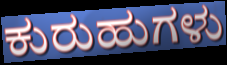
ಕುರುಹುಗಳು